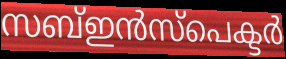
സബ്ഇൻസ്പെക്ടർ